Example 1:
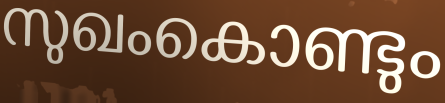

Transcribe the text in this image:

സുഖംകൊണ്ടും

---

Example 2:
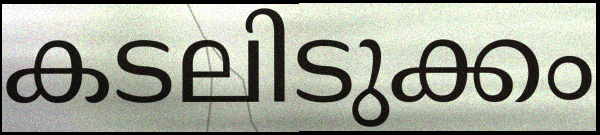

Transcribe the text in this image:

കടലിടുക്കം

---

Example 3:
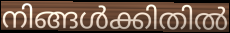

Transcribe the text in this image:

നിങ്ങൾക്കിതിൽ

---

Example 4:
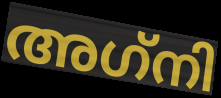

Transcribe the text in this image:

അഗ്‌നി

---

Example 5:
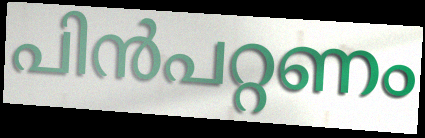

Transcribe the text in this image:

പിൻപറ്റണം